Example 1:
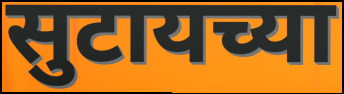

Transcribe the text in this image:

सुटायच्या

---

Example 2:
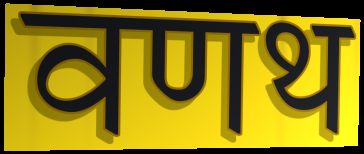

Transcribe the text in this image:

वणथ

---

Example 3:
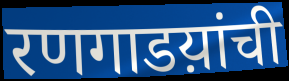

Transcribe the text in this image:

रणगाडय़ांची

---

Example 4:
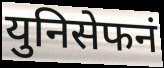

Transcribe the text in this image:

युनिसेफनं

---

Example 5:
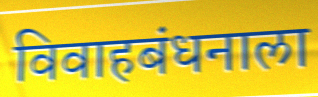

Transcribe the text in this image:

विवाहबंधनाला